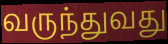
வருந்துவது